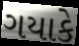
ગયાકે